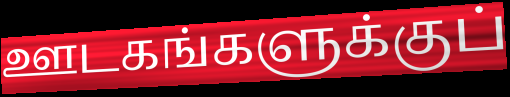
ஊடகங்களுக்குப்